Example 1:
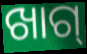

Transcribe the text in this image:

ଖାଗ୍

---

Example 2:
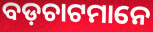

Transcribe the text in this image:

ବଡ଼ଚାଟମାନେ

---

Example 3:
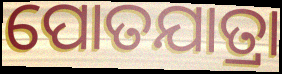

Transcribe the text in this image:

ପୋତଯାତ୍ରା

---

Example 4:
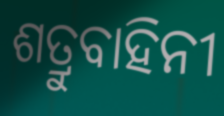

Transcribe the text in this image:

ଶତ୍ରୁବାହିନୀ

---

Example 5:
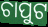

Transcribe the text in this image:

ଚାପୁଟ